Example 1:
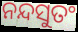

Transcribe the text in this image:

ନନ୍ଦସୁତଂ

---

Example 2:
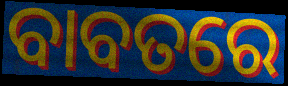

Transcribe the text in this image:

ବାବତରେ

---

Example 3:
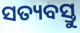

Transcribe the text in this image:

ସତ୍ୟବସ୍ତୁ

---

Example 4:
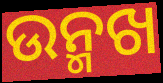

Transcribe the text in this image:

ଉନ୍ମଖ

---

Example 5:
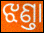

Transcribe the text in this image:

ଝଣ୍ତା